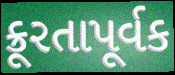
ક્રૂરતાપૂર્વક